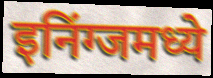
इनिंग्जमध्ये